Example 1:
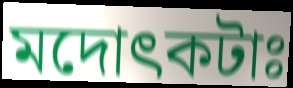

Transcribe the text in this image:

মদোৎকটাঃ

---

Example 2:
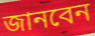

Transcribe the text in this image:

জানবেন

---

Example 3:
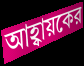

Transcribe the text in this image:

আহ্বায়কের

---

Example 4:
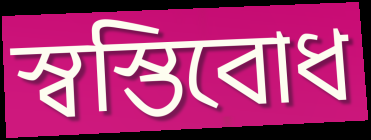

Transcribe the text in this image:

স্বস্তিবোধ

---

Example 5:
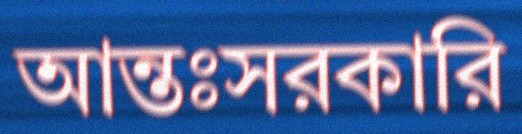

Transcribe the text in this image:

আন্তঃসরকারি